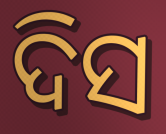
ଦିସ